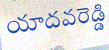
యాదవరెడ్డి